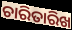
ଚାରିତାରିଖ